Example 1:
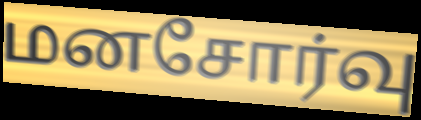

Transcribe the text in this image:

மனசோர்வு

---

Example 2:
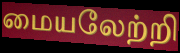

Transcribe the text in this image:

மையலேற்றி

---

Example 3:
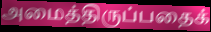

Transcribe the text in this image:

அமைத்திருப்பதைக்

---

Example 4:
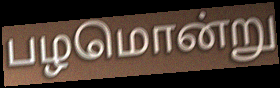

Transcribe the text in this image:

பழமொன்று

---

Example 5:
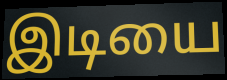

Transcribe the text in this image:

இடியை